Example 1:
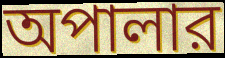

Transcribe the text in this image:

অপালার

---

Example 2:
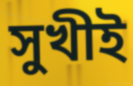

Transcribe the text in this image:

সুখীই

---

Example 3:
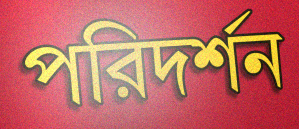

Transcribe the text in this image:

পরিদর্শন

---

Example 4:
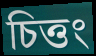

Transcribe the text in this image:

চিত্তং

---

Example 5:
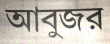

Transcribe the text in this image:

আবুজর